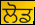
ਲੋਡ